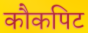
कौकपिट